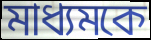
মাধ্যমকে